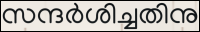
സന്ദർശിച്ചതിനു